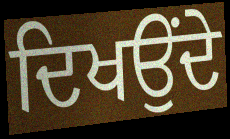
ਦਿਖਉਂਦੇ